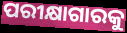
ପରୀକ୍ଷାଗାରକୁ